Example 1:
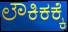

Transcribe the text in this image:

ಲೌಕಿಕಕ್ಕೆ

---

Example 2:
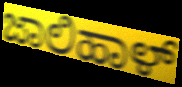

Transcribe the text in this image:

ಜಾಲಿಹಾಳ್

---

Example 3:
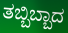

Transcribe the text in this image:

ತಬ್ಬಿಬ್ಬಾದ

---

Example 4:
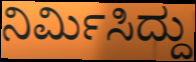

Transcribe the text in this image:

ನಿರ್ಮಿಸಿದ್ದು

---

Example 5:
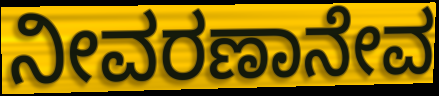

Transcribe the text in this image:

ನೀವರಣಾನೇವ